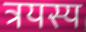
त्रयस्य